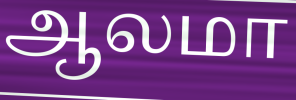
ஆலமா